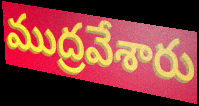
ముద్రవేశారు